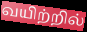
வயிற்றில்